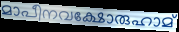
മാപീനവക്ഷോരുഹാമ്